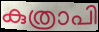
കുത്രാപി